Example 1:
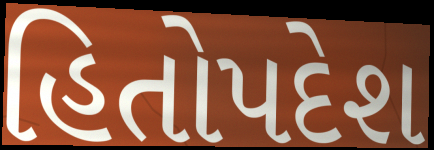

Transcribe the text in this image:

હિતોપદેશ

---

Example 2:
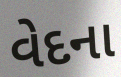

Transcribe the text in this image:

વેદના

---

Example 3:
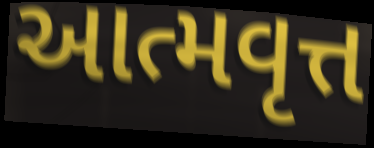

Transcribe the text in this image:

આત્મવૃત્ત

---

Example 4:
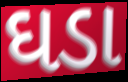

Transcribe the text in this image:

ઘડા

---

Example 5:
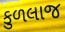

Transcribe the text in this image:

કુળલાજ